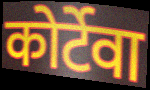
कोर्टेवा